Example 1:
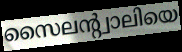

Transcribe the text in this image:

സൈലന്റ്വാലിയെ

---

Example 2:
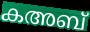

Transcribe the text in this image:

കഅബ്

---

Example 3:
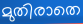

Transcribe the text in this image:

മുതിരാതെ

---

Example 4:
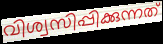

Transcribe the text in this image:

വിശ്വസിപ്പിക്കുന്നത്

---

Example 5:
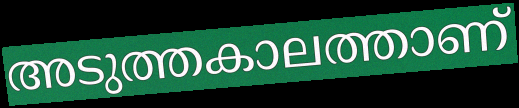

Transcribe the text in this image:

അടുത്തകാലത്താണ്